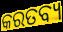
କରତବ୍ୟ